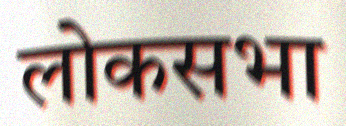
लोकसभा